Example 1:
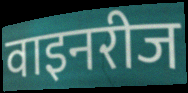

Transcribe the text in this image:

वाइनरीज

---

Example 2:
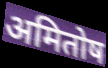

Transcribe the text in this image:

अमितोष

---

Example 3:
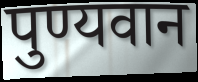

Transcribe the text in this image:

पुण्यवान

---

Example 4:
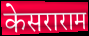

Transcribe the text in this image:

केसराराम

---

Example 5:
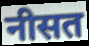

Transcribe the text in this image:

नीसत